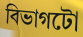
বিভাগটো